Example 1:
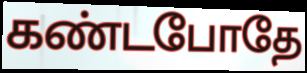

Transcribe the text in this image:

கண்டபோதே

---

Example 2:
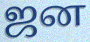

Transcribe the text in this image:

ஜன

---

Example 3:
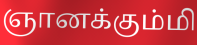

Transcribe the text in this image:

ஞானக்கும்மி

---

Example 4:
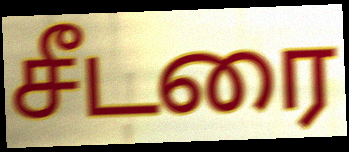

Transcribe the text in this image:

சீடரை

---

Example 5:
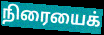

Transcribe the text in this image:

நிரையைக்